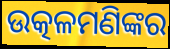
ଉତ୍କଳମଣିଙ୍କର